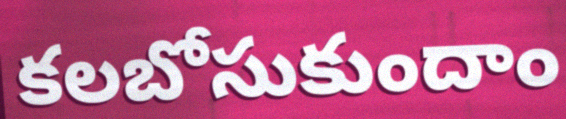
కలబోసుకుందాం